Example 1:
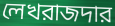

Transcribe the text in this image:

লেখরাজদার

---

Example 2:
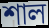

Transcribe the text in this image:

শাল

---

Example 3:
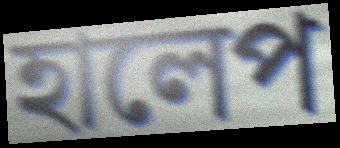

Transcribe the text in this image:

হালেপ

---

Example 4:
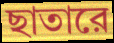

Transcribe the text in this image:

ছাতারে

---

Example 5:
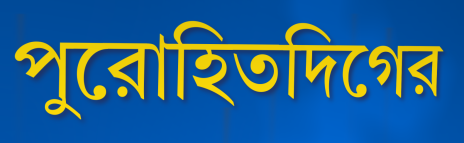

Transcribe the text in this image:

পুরোহিতদিগের